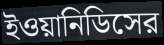
ইওয়ানিডিসের